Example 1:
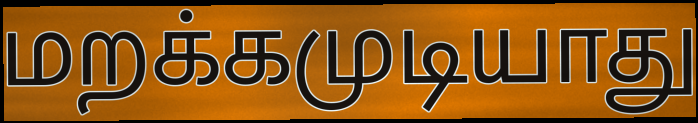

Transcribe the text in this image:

மறக்கமுடியாது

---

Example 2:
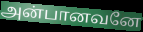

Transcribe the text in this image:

அன்பானவனே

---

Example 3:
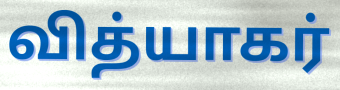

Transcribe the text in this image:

வித்யாகர்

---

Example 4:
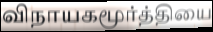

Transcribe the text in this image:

விநாயகமூர்த்தியை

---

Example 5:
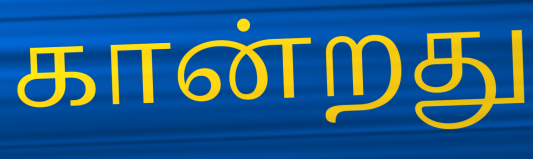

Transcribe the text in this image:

கான்றது